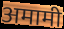
अमामी